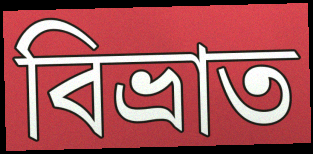
বিভ্ৰাত